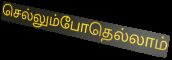
செல்லும்போதெல்லாம்